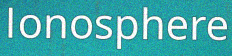
Ionosphere